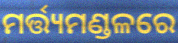
ମର୍ତ୍ତ୍ୟମଣ୍ଡଳରେ